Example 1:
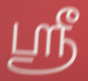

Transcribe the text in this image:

ஸ்ரீ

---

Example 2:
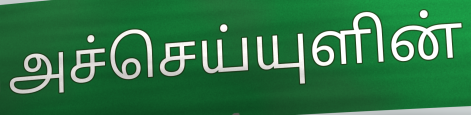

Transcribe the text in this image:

அச்செய்யுளின்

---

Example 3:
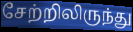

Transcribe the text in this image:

சேற்றிலிருந்து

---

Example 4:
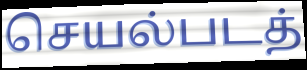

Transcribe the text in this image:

செயல்படத்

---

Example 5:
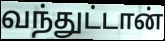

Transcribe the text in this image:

வந்துட்டான்